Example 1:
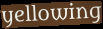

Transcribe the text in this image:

yellowing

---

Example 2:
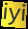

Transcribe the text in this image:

iyi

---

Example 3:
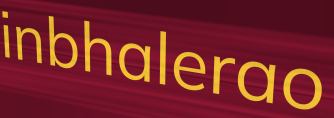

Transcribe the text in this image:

inbhalerao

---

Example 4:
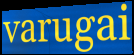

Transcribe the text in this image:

varugai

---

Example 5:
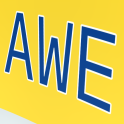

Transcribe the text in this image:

AWE